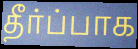
தீர்ப்பாக